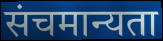
संचमान्यता